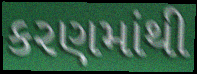
કરણમાંથી